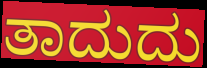
ತಾದುದು